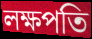
লক্ষপতি